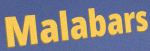
Malabars